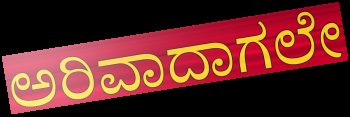
ಅರಿವಾದಾಗಲೇ